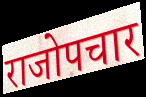
राजोपचार